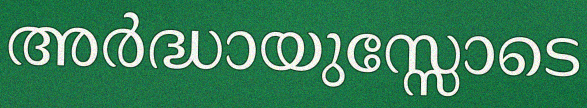
അർദ്ധായുസ്സോടെ